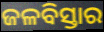
ଜଳବିସ୍ତାର